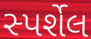
સ્પર્શેલ